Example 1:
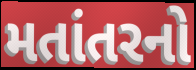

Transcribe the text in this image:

મતાંતરનો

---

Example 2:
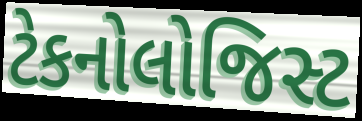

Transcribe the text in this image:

ટેકનોલોજિસ્ટ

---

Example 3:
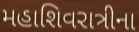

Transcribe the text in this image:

મહાશિવરાત્રીના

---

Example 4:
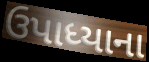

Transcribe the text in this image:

ઉપાધ્યાના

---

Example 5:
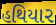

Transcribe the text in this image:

હથિયાર